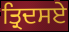
ਤ੍ਰਿਦਸਏ